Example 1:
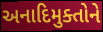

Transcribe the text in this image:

અનાદિમુક્તોને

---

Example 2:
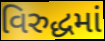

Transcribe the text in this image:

વિરુદ્ધમાં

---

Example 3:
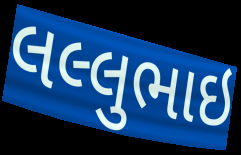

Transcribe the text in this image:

લલ્લુભાઇ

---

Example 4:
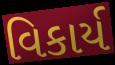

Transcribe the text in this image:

વિકાર્ય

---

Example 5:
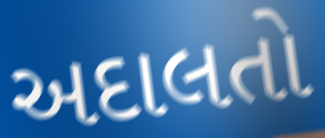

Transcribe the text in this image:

અદાલતો